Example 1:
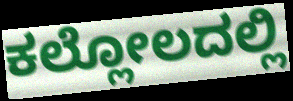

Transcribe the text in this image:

ಕಲ್ಲೋಲದಲ್ಲಿ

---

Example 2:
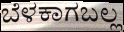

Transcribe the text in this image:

ಬೆಳಕಾಗಬಲ್ಲ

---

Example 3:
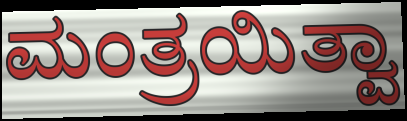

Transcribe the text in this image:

ಮಂತ್ರಯಿತ್ವಾ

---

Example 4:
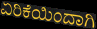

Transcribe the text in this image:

ಏರಿಕೆಯಿಂದಾಗಿ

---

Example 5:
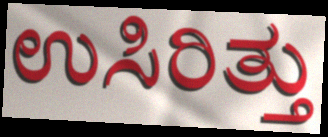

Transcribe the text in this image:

ಉಸಿರಿತ್ತು